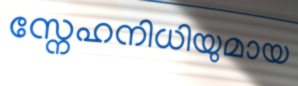
സ്നേഹനിധിയുമായ